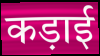
कड़ाई